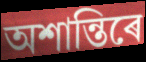
অশান্তিৰে